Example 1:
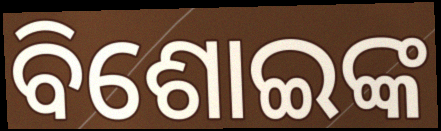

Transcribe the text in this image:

ବିଶୋଇଙ୍କ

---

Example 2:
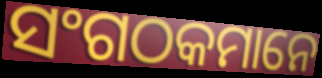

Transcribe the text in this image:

ସଂଗଠକମାନେ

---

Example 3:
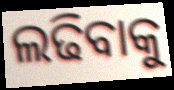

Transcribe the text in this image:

ଲଢିବାକୁ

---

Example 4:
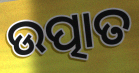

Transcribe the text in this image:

ଉତ୍ପାତ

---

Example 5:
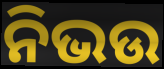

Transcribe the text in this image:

ନିଭଉ